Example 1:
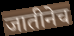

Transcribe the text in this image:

जातीनेच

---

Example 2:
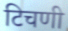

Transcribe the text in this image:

टिचणी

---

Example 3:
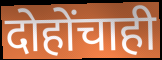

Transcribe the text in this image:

दोहोंचाही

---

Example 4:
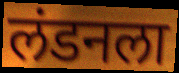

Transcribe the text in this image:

लंडनला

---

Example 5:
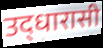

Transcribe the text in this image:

उद्धारासी